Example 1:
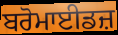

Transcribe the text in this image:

ਬਰੋਮਾਈਡਜ਼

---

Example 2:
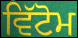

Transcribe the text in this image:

ਵਿੱਟੋਮ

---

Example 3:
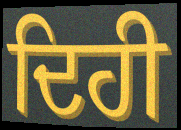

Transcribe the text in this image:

ਦਿਹੀ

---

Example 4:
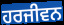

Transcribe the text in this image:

ਹਰਜੀਵਨ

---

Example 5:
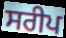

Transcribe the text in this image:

ਸਰੀਪ